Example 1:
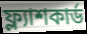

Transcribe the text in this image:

ফ্ল্যাশকার্ড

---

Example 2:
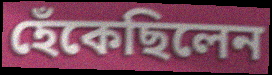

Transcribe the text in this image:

হেঁকেছিলেন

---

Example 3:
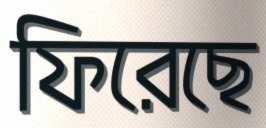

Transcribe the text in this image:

ফিরেছে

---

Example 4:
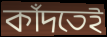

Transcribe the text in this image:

কাঁদতেই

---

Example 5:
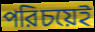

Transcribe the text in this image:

পরিচয়েই